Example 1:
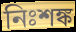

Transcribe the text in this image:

নিঃশঙ্ক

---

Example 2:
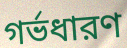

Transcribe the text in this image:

গর্ভধারণ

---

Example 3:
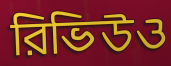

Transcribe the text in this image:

রিভিউও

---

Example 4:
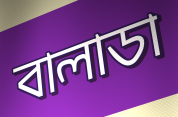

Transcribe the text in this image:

বালাডা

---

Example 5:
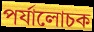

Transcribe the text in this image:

পর্যালোচক